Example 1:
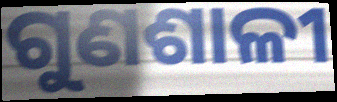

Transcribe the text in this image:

ଗୁଣଶାଳୀ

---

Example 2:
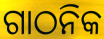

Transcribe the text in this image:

ଗାଠନିକ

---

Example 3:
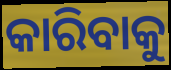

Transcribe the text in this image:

କାରିବାକୁ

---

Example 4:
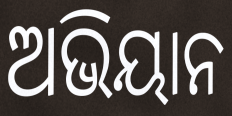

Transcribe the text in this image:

ଅଭିୟାନ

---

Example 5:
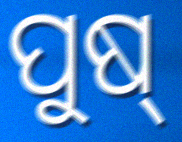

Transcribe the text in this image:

ପୁଷ୍